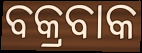
ବକ୍ରବାକ